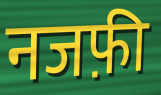
नजफ़ी